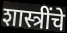
शास्त्रींचे